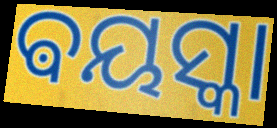
ଵୟସ୍କା